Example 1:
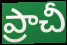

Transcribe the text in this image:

ప్రాచీ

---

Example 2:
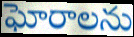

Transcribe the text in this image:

ఘోరాలను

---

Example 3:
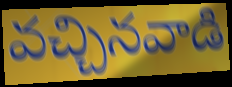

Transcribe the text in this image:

వచ్చినవాడి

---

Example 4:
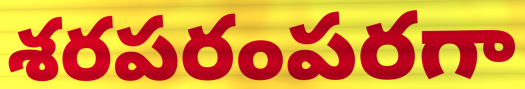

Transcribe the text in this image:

శరపరంపరగా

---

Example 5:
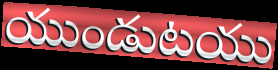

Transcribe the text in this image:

యుండుటయు